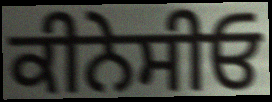
ਕੀਨੇਸੀਓ